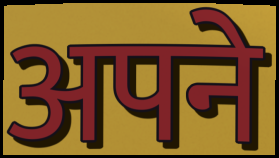
अपने